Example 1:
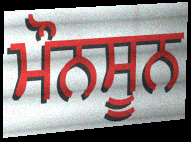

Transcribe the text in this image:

ਮੌਨਸੂਨ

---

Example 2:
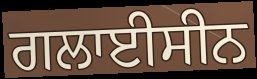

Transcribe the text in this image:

ਗਲਾਈਸੀਨ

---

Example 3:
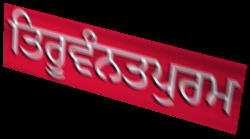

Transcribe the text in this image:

ਤਿਰੂਵੰਨਤਪੁਰਮ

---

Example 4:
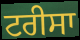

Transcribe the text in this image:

ਟਰੀਸਾ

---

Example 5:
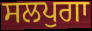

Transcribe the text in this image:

ਸਲਪੁਗਾ